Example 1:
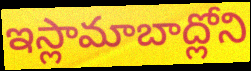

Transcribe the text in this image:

ఇస్లామాబాద్లోని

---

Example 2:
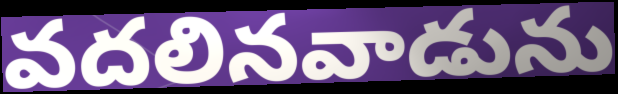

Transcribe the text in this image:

వదలినవాడును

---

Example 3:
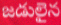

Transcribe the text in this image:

జడులైన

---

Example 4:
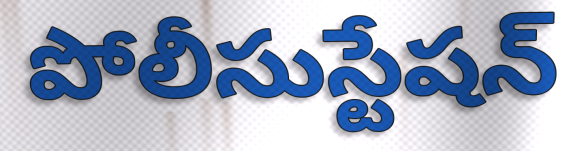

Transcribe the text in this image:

పోలీసుస్టేషన్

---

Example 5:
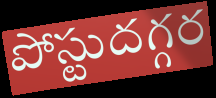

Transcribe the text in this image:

పోస్టుదగ్గర